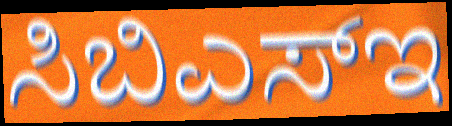
ಸಿಬಿಎಸ್ಇ